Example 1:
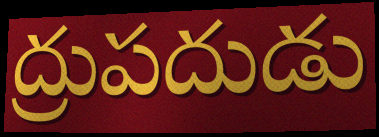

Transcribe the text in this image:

ద్రుపదుడు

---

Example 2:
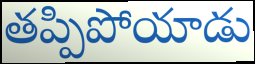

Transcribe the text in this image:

తప్పిపోయాడు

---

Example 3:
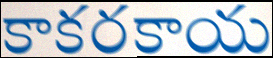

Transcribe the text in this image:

కాకరకాయ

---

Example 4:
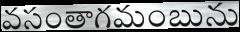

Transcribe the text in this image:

వసంతాగమంబును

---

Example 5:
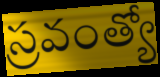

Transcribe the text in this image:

స్రవంత్యో